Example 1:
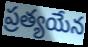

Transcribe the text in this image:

ప్రత్యయేన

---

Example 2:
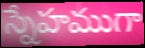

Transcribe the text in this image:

స్నేహముగా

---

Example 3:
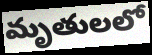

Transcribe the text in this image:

మృతులలో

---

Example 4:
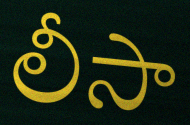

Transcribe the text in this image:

లీసా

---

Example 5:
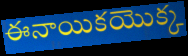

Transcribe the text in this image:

ఈనాయికయొక్క